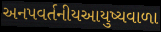
અનપવર્તનીયઆયુષ્યવાળા